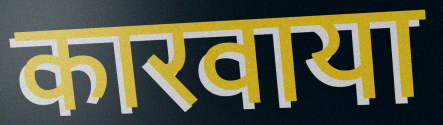
कारवाया